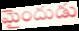
మైందుడు